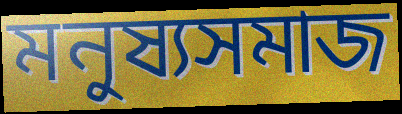
মনুষ্যসমাজ